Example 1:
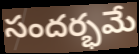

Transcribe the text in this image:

సందర్భమే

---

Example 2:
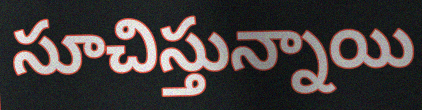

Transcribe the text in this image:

సూచిస్తున్నాయి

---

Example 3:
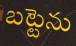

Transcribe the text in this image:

బట్టెను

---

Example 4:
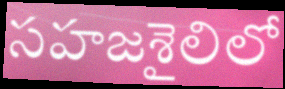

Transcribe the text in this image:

సహజశైలిలో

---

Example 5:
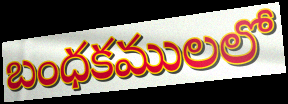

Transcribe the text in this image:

బంధకములలో